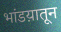
भांडय़ातून